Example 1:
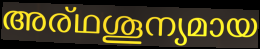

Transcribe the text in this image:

അര്ഥശൂന്യമായ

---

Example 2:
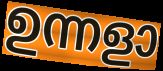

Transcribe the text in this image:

ഉന്നളാ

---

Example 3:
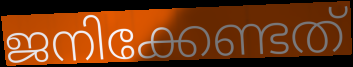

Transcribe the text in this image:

ജനിക്കേണ്ടത്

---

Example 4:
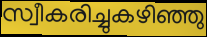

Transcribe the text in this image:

സ്വീകരിച്ചുകഴിഞ്ഞു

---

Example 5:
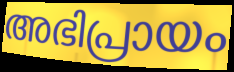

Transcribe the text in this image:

അഭിപ്രായം